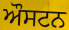
ਔਸਟਨ